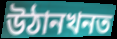
উঠানখনত